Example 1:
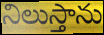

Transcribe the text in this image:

నిలుస్తాను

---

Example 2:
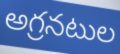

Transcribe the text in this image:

అగ్రనటుల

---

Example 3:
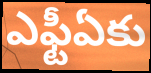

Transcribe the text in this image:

ఎఫ్టీఏకు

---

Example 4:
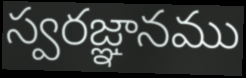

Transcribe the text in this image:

స్వరజ్ఞానము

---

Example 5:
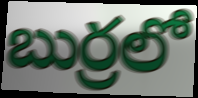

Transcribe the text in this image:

బుర్రలో